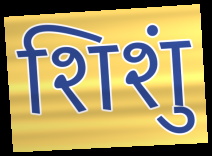
शिशुं